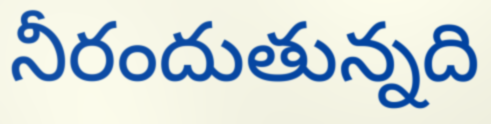
నీరందుతున్నది